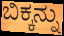
ಬಿಕ್ಕನ್ನು